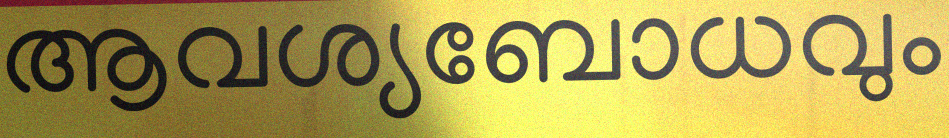
ആവശ്യബോധവും